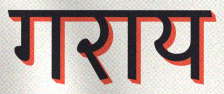
गराय